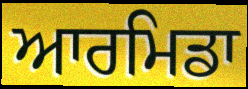
ਆਰਮਿਡਾ